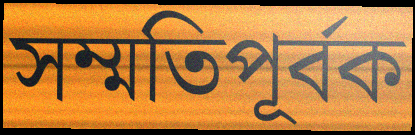
সম্মতিপূর্বক